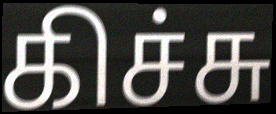
கிச்சு